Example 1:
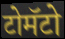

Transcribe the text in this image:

टोमॅटो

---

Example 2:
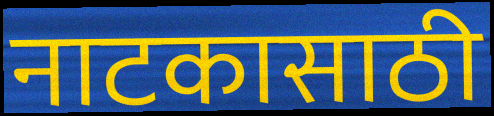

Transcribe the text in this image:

नाटकासाठी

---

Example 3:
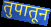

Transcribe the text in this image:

तुपातून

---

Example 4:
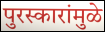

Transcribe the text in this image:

पुरस्कारांमुळे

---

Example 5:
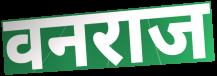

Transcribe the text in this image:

वनराज